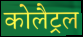
कोलैट्रल